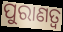
ପୁରାଣତ୍ୱ